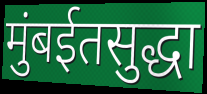
मुंबईतसुद्धा